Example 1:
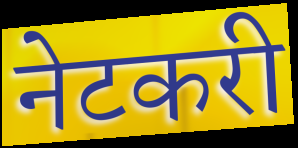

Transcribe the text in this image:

नेटकरी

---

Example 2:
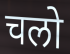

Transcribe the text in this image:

चलो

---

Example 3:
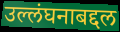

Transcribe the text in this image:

उल्लंघनाबद्दल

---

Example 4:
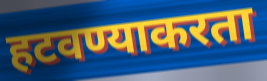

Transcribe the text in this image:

हटवण्याकरता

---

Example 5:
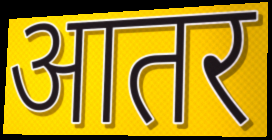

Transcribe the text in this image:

आतर